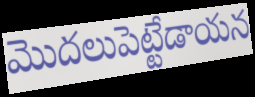
మొదలుపెట్టేడాయన